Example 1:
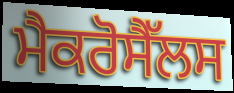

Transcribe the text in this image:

ਮੈਕਰੋਸੈੱਲਸ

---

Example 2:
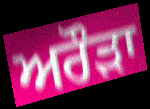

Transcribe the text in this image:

ਅਰੌੜਾ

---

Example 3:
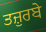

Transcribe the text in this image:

ਤਜ਼ੁਰਬੇ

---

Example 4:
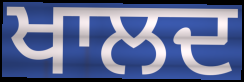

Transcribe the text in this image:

ਖਾਲਦ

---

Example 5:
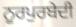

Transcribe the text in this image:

ਨੂਰਪੁਰਬੇਦੀ